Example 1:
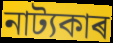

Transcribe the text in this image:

নাট্যকাৰ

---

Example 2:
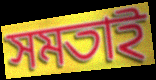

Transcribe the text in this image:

সমতাই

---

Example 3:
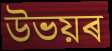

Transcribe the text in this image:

উভয়ৰ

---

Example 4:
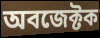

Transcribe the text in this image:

অবজেক্টক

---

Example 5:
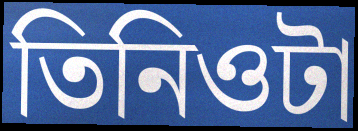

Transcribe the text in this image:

তিনিওটা